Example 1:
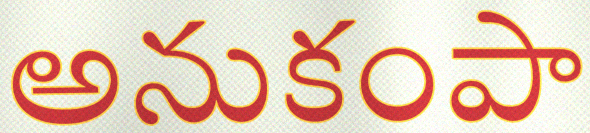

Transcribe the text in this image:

అనుకంపా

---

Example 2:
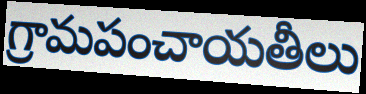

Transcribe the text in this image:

గ్రామపంచాయతీలు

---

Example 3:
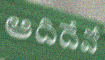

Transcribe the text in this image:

ఆదిదేవో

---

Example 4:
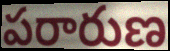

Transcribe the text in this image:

పరారుణ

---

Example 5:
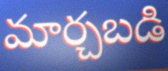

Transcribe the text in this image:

మార్చబడి